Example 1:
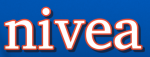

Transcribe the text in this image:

nivea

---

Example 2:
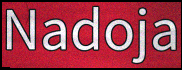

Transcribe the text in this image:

Nadoja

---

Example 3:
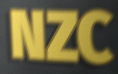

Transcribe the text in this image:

NZC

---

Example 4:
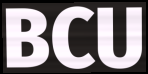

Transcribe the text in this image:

BCU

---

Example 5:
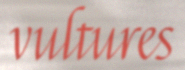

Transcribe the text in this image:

vultures